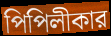
পিপিলীকার